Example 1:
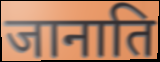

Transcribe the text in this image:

जानाति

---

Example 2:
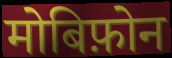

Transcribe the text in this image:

मोबिफ़ोन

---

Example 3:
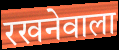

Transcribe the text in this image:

रखनेवाला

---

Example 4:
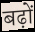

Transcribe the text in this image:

बढ़ों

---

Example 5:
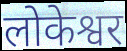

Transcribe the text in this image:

लोकेश्वर